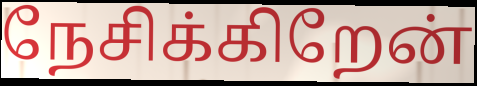
நேசிக்கிறேன்